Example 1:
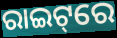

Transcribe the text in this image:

ରାଇଟ୍‌ରେ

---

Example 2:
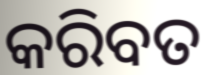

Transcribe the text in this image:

କରିବତ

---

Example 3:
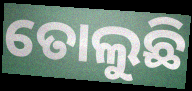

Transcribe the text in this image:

ତୋଲୁଛି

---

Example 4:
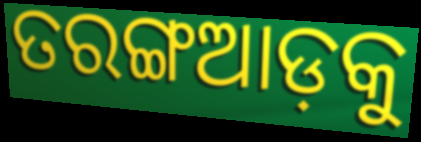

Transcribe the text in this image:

ତରଙ୍ଗଆଡ଼କୁ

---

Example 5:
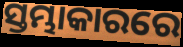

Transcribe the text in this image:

ସ୍ତମ୍ଭାକାରରେ